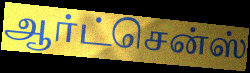
ஆர்ட்சென்ஸ்